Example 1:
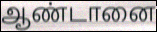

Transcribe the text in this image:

ஆண்டானை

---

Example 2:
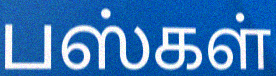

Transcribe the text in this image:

பஸ்கள்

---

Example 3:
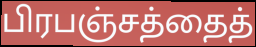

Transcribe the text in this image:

பிரபஞ்சத்தைத்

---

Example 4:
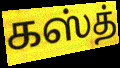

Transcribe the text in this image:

கஸ்த்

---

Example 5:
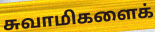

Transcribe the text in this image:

சுவாமிகளைக்